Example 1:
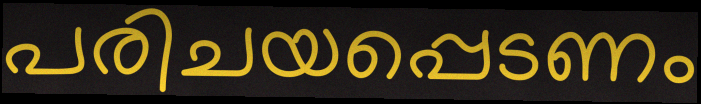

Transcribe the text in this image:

പരിചയപ്പെടണം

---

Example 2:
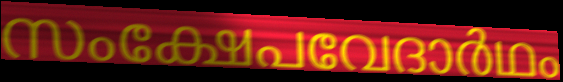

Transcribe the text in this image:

സംക്ഷേപവേദാർഥം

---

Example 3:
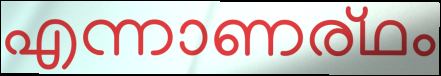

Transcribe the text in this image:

എന്നാണര്ഥം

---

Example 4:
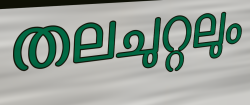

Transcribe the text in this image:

തലചുറ്റലും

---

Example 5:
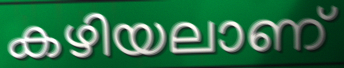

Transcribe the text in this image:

കഴിയലാണ്